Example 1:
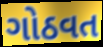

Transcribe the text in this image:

ગોઠવત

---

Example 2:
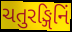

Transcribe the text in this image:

ચતુરઙ્ગિનિં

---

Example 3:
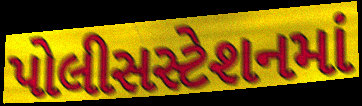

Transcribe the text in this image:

પોલીસસ્ટેશનમાં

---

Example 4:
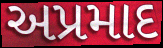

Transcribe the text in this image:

અપ્રમાદ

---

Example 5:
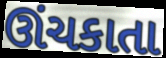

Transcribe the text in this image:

ઊંચકાતા